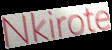
Nkirote